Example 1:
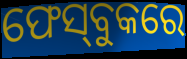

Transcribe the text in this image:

ଫେସ୍‌ବୁକରେ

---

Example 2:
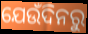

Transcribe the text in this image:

ଯେଉଁଦିନରୁ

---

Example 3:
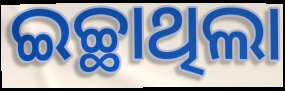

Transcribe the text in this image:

ଇଚ୍ଛାଥିଲା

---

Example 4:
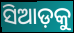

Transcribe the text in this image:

ସିଆଡ଼କୁ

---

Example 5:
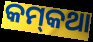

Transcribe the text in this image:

କମ୍‌କଥା